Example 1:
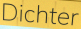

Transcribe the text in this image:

Dichter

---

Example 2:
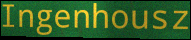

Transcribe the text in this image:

Ingenhousz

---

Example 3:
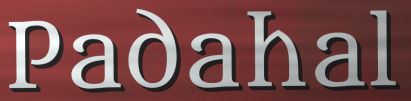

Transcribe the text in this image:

Padahal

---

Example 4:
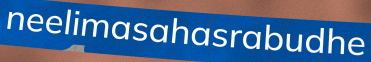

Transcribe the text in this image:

neelimasahasrabudhe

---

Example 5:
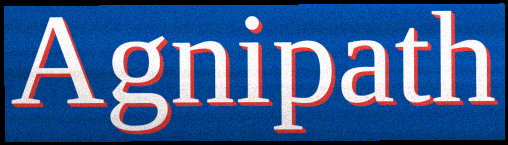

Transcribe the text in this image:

Agnipath